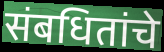
संबधितांचे